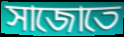
সাজোতে